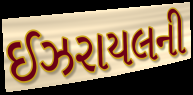
ઈઝરાયલની